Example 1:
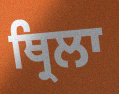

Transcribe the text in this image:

ਥ੍ਰਿਲਾ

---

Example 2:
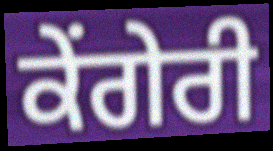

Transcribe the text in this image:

ਕੇਂਗੇਰੀ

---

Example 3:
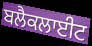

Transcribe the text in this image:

ਬਲੈਕਲਾਈਟ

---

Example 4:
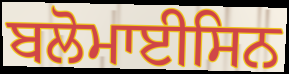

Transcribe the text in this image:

ਬਲੋਮਾਈਸਿਨ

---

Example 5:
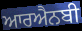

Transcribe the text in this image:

ਆਰਐਨਬੀ